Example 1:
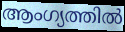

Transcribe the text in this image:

ആംഗ്യത്തിൽ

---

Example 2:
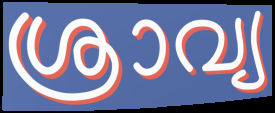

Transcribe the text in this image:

ശ്രാവ്യ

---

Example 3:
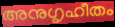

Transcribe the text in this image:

അനുഗൃഹീതം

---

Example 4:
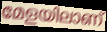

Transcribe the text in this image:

മേളയിലാണ്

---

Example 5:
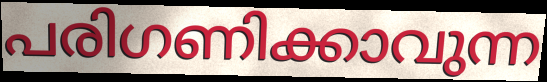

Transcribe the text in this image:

പരിഗണിക്കാവുന്ന